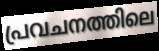
പ്രവചനത്തിലെ